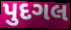
પુદગલ